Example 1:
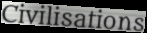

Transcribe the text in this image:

Civilisations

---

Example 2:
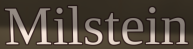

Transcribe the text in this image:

Milstein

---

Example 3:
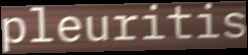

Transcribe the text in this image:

pleuritis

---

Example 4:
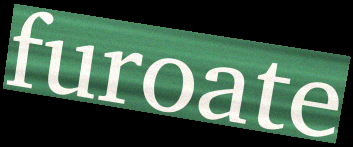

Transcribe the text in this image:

furoate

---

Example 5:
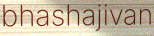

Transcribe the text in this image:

bhashajivan